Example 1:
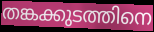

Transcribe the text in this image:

തങ്കക്കുടത്തിനെ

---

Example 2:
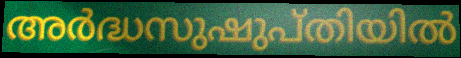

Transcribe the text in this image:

അർദ്ധസുഷുപ്തിയിൽ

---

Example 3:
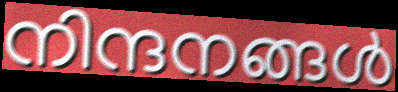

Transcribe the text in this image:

നിന്ദനങ്ങൾ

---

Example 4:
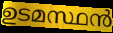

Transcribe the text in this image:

ഉടമസ്ഥൻ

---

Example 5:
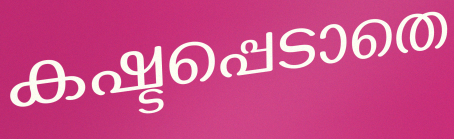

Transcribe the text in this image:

കഷ്ടപ്പെടാതെ